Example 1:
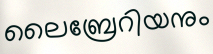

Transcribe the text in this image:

ലൈബ്രേറിയനും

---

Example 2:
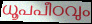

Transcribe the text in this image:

ധൂപപീഠവും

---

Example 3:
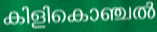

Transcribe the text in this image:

കിളികൊഞ്ചൽ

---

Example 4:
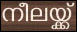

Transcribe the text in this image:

നീലയ്ക്ക്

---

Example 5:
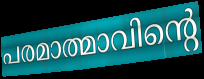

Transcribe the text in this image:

പരമാത്മാവിന്റെ